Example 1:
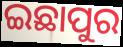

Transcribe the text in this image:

ଇଛାପୁର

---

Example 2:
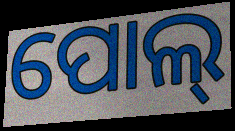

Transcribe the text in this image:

ପୋଲ୍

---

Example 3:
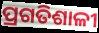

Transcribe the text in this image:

ପ୍ରଗତିଶାଳୀ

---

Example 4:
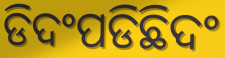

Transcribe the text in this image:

ଡିଦଂପଡିଛିଦଂ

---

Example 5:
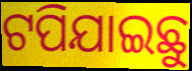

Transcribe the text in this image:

ଟପିଯାଇଛୁ